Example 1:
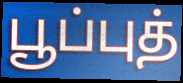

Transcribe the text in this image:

பூப்புத்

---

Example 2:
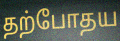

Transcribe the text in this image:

தற்போதய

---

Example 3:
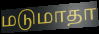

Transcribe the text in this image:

மடுமாதா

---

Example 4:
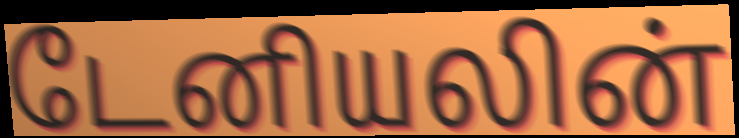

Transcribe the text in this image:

டேனியலின்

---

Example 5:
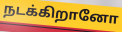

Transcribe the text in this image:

நடக்கிறானோ